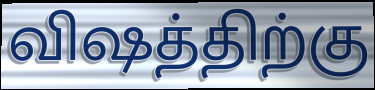
விஷத்திற்கு